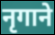
नृगाने